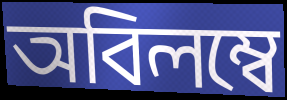
অবিলম্বে